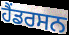
ਹੈਂਡਰਸਨ